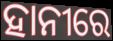
ହାନୀରେ